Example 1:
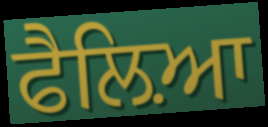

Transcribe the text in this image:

ਫੈਲ਼ਿਆ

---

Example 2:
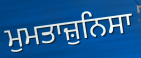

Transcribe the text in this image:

ਮੁਮਤਾਜ਼ੁਨਿਸਾ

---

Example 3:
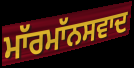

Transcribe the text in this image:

ਮਾੱਰਮਾੱਨਸਵਾਦ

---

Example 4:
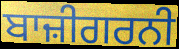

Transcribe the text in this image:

ਬਾਜ਼ੀਗਰਨੀ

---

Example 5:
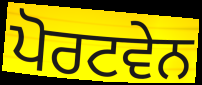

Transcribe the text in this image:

ਪੋਰਟਵੇਨ